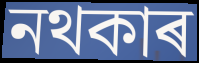
নথকাৰ